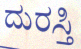
ದುರಸ್ತಿ